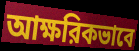
আক্ষরিকভাবে